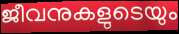
ജീവനുകളുടെയും